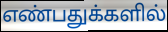
எண்பதுக்களில்